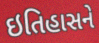
ઇતિહાસને